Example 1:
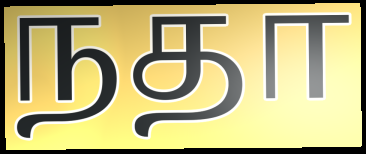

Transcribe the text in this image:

நதா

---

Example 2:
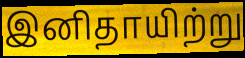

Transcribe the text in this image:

இனிதாயிற்று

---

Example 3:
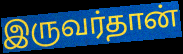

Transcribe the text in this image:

இருவர்தான்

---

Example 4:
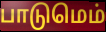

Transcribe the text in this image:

பாடுமெம்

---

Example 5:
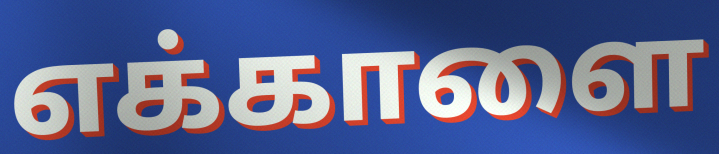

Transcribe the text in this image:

எக்காளை